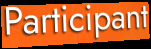
Participant